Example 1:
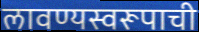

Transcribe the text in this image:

लावण्यस्वरूपाची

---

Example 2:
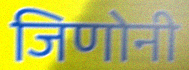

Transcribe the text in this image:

जिणोनी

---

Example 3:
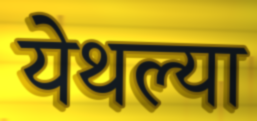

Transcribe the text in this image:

येथल्या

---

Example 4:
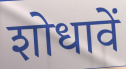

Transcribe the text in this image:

शोधावें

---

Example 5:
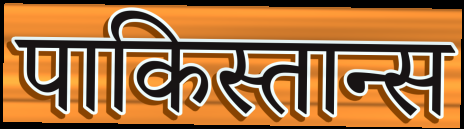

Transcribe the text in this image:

पाकिस्तान्स